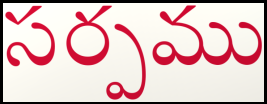
సర్పము